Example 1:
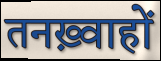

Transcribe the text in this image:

तनख़्वाहों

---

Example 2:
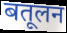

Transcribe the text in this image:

बतूलन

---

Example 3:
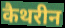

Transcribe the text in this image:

कैथरीन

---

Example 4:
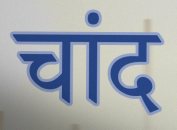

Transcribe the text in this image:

चांद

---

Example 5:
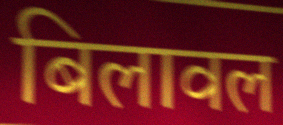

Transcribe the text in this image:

बिलावल